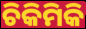
ଚିକିମିକି